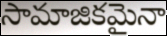
సామాజికమైనా